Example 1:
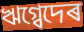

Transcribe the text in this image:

ঋগ্বেদেৰ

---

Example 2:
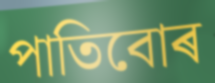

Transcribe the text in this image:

পাতিবোৰ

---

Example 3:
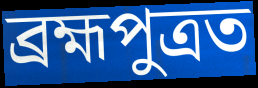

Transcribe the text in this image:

ব্ৰহ্মপুত্ৰত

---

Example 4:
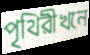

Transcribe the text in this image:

পৃথিৱীখনে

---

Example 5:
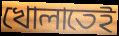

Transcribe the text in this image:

খোলাতেই